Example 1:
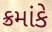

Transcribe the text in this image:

ક્રમાંકે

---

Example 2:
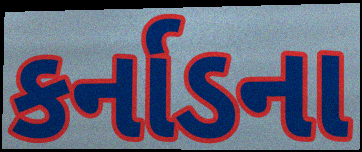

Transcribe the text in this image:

કર્નાડના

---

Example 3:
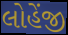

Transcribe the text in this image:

લોહેંજી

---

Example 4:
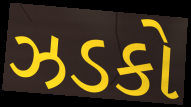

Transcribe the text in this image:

ઝડકો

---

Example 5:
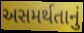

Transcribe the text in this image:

અસમર્થતાનું